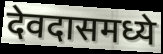
देवदासमध्ये